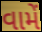
વામેં